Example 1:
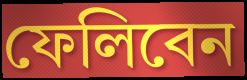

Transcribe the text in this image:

ফেলিবেন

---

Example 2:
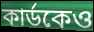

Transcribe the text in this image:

কার্ডকেও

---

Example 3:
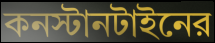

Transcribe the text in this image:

কনস্টানটাইনের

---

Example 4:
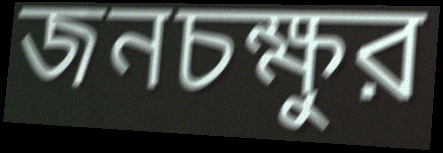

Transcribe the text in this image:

জনচক্ষুর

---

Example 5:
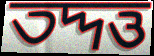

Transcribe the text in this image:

তদ্দত্ত